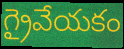
గ్రైవేయకం